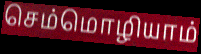
செம்மொழியாம்